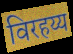
विरहय्य